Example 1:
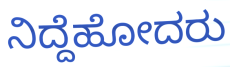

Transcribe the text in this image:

ನಿದ್ದೆಹೋದರು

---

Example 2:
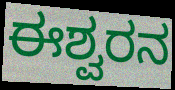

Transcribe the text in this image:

ಈಶ್ವರನ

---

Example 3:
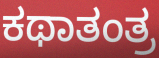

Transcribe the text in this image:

ಕಥಾತಂತ್ರ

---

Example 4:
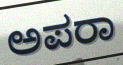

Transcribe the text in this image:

ಅಪರಾ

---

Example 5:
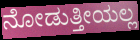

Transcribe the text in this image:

ನೋಡುತ್ತೀಯಲ್ಲ